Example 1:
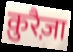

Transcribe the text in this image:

क़ुरैज़ा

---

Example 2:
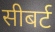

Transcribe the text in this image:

सीबर्ट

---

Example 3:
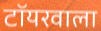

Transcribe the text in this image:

टॉयरवाला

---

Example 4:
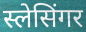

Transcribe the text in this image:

स्लेसिंगर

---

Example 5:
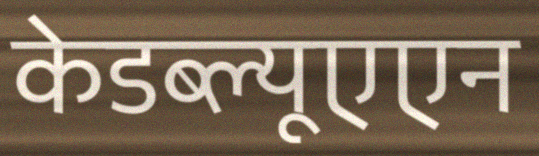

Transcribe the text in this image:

केडब्ल्यूएएन